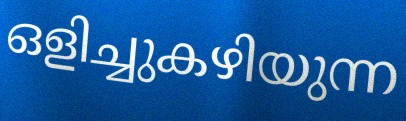
ഒളിച്ചുകഴിയുന്ന